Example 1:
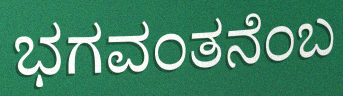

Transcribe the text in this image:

ಭಗವಂತನೆಂಬ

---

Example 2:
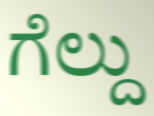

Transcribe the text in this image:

ಗೆಲ್ದು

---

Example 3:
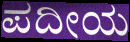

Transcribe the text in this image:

ಪದೀಯ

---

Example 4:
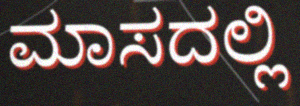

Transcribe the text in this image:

ಮಾಸದಲ್ಲಿ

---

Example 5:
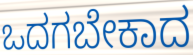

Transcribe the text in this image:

ಒದಗಬೇಕಾದ